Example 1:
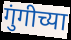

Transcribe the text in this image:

गुंगीच्या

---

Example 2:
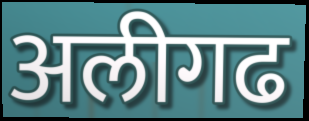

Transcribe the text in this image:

अलीगढ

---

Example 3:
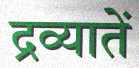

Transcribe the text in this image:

द्रव्यातें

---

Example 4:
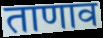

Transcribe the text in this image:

ताणाव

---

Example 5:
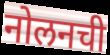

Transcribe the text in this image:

नोलनची